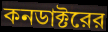
কনডাক্টরের